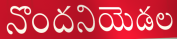
నొందనియెడల